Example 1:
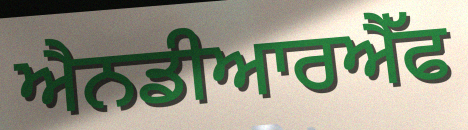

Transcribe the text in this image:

ਐਨਡੀਆਰਐੱਫ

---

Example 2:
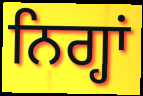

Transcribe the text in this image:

ਨਿਗ੍ਹਾਂ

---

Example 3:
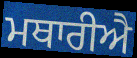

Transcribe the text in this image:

ਮਥਾਰੀਐ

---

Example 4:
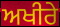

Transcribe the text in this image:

ਅਖੀਰੇ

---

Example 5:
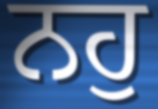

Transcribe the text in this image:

ਨਹੁ